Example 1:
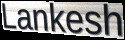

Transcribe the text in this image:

Lankesh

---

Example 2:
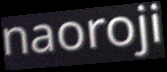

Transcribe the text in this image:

naoroji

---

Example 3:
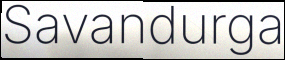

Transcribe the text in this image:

Savandurga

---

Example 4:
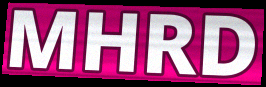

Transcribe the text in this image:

MHRD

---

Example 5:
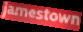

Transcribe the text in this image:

jamestown